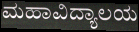
ಮಹಾವಿದ್ಯಾಲಯ